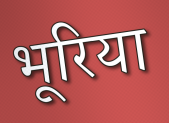
भूरिया